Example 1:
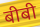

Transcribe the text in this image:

बीबी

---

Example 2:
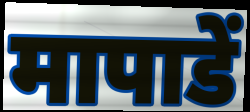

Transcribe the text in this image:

मापाडें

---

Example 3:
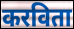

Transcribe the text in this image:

करविता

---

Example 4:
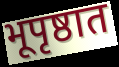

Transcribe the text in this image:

भूपृष्ठात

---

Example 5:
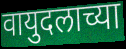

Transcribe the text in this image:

वायुदलाच्या